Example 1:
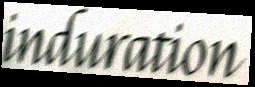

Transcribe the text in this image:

induration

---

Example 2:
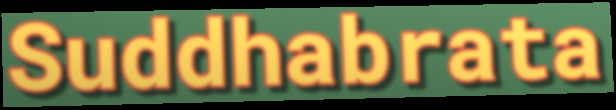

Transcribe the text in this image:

Suddhabrata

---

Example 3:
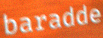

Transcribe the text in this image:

baradde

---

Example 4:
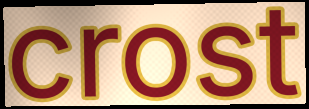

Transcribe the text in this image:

crost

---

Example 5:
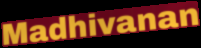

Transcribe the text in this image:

Madhivanan